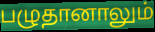
பழுதானாலும்